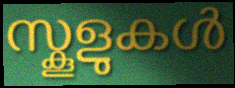
സ്കൂളുകൾ